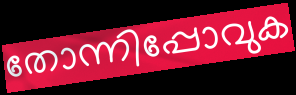
തോന്നിപ്പോവുക